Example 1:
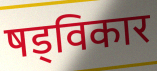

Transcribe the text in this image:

षड्‌विकार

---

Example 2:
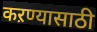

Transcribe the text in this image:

कऱण्यासाठी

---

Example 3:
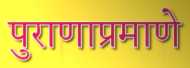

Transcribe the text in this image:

पुराणाप्रमाणे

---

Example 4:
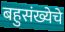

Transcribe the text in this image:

बहुसंख्येचे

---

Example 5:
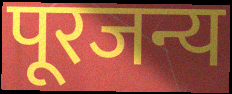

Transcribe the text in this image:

पूरजन्य